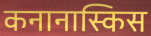
कनानास्किस